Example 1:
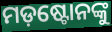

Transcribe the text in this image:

ମଡ଼ଷ୍ଟୋନଙ୍କୁ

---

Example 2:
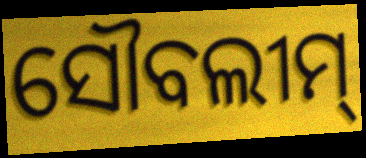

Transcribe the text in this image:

ସୌବଲୀମ୍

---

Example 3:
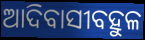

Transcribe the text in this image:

ଆଦିବାସୀବହୁଳ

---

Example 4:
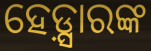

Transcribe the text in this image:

ହେଡ଼୍ସାରଙ୍କ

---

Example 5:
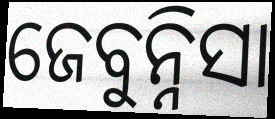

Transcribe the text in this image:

ଜେବୁନ୍ନିସା